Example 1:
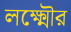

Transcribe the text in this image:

লক্ষ্মৌর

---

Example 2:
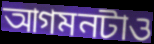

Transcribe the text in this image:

আগমনটাও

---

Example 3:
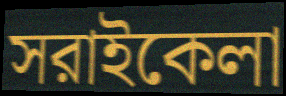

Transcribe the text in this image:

সরাইকেলা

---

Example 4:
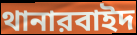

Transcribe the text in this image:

থানারবাইদ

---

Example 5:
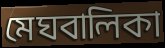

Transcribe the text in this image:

মেঘবালিকা